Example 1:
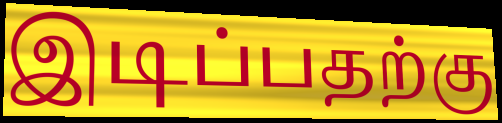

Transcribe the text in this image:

இடிப்பதற்கு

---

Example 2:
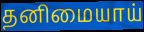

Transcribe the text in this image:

தனிமையாய்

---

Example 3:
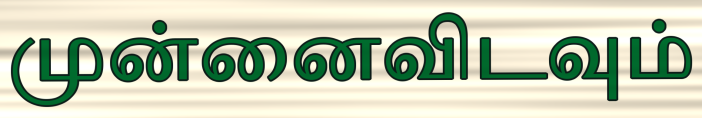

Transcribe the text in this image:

முன்னைவிடவும்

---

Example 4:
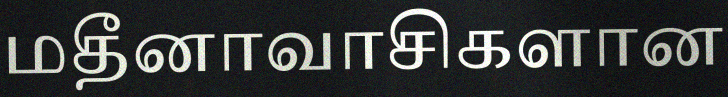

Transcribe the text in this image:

மதீனாவாசிகளான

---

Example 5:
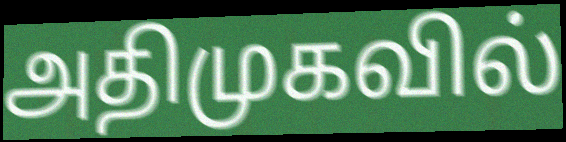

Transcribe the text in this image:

அதிமுகவில்